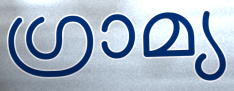
ഗ്രാമ്യ